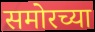
समोरच्या